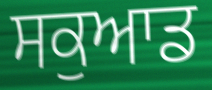
ਸਕੁਆਡ